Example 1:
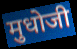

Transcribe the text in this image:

मुधोजी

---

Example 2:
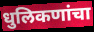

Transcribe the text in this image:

धुलिकणांचा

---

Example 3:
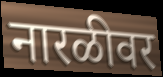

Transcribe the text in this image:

नारळीवर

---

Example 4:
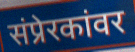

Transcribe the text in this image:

संप्रेरकांवर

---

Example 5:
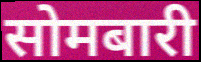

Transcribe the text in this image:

सोमबारी